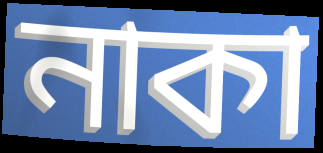
নাকা